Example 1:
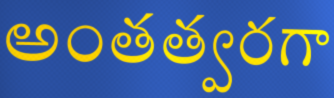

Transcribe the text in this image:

అంతత్వరగా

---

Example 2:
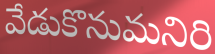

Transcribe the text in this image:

వేడుకొనుమనిరి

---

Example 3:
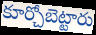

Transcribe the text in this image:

కూర్చోబెట్టారు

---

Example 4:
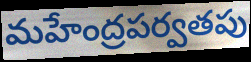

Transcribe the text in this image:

మహేంద్రపర్వతపు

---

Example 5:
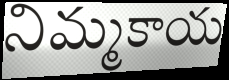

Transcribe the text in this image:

నిమ్మకాయ